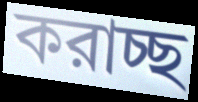
করাচ্ছ